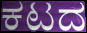
ಕಟದ